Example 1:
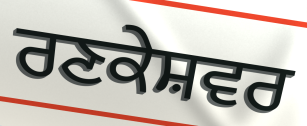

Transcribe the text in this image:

ਰਣਕੇਸ਼ਵਰ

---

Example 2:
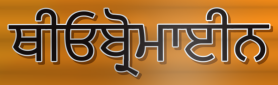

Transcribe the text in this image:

ਥੀਓਬ੍ਰੋਮਾਈਨ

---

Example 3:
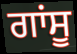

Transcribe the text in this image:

ਗਾਂਸੂ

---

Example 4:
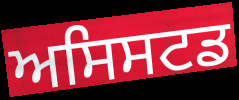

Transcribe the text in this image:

ਅਸਿਸਟਡ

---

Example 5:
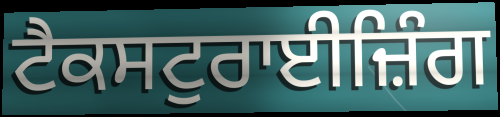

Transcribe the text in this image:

ਟੈਕਸਟੁਰਾਈਜ਼ਿੰਗ